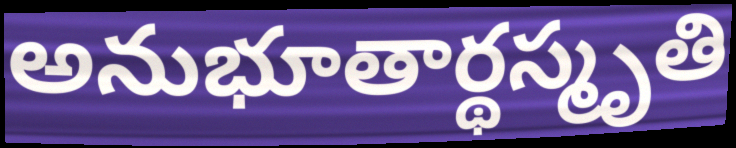
అనుభూతార్థస్మృతి